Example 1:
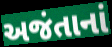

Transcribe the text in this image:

અજંતાનાં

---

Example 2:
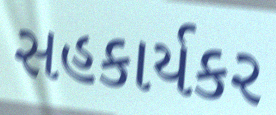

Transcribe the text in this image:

સહકાર્યકર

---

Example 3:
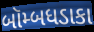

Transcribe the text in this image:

બૉમ્બધડાકા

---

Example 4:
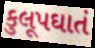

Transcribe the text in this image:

કુલૂપઘાતં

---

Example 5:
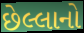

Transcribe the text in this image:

છેલ્લાનો